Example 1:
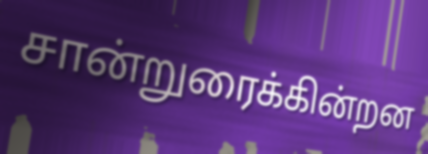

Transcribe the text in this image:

சான்றுரைக்கின்றன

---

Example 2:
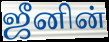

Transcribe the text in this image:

ஜீனின்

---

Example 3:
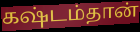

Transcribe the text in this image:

கஷ்டம்தான்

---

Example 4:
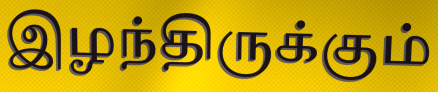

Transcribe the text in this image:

இழந்திருக்கும்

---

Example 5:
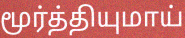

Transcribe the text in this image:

மூர்த்தியுமாய்